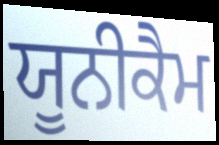
ਯੂਨੀਕੈਮ